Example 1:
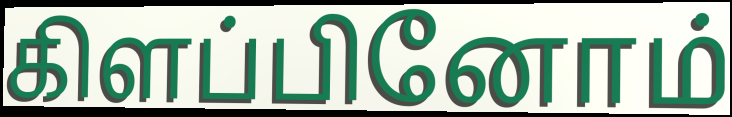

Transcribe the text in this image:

கிளப்பினோம்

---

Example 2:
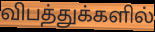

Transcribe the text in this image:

விபத்துக்களில்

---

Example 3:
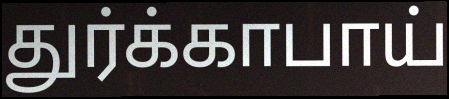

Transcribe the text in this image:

துர்க்காபாய்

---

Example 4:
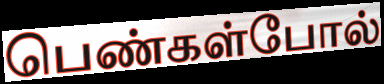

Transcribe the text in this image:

பெண்கள்போல்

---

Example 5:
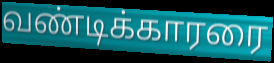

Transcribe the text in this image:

வண்டிக்காரரை